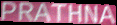
PRATHNA